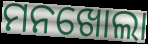
ମନଖୋଲା